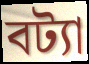
বট্যা